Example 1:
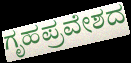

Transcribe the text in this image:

ಗೃಹಪ್ರವೇಶದ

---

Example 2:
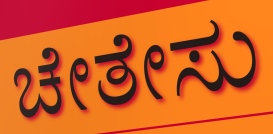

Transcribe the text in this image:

ಚೇತೇಸು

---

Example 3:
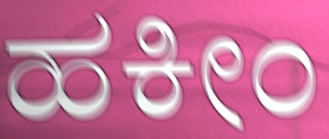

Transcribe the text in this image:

ಹಕೀಂ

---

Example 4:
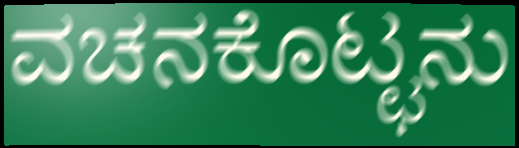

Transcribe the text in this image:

ವಚನಕೊಟ್ಟನು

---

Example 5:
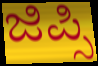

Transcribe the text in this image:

ಜಿಪ್ಸಿ